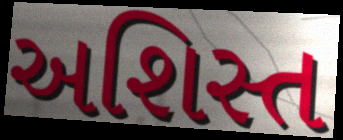
અશિસ્ત